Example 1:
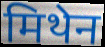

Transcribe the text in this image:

मिथेन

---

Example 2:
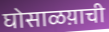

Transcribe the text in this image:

घोसाळय़ाची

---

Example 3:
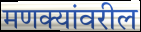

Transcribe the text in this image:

मणक्यांवरील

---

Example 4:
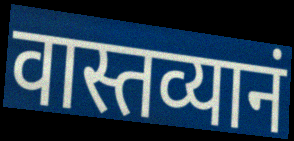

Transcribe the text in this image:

वास्तव्यानं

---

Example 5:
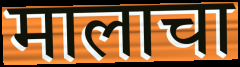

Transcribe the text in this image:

मालाचा